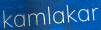
kamlakar